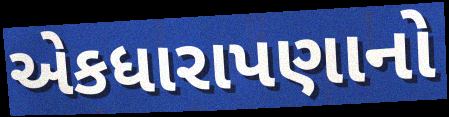
એકધારાપણાનો